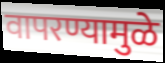
वापरण्यामुळे